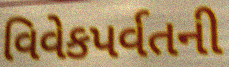
વિવેકપર્વતની